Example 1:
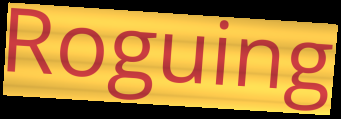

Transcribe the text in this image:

Roguing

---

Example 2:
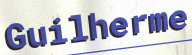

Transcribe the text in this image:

Guilherme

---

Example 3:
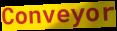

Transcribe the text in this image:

Conveyor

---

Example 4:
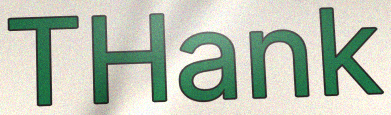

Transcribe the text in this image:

THank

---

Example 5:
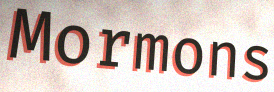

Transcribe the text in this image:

Mormons